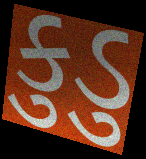
કુડુ